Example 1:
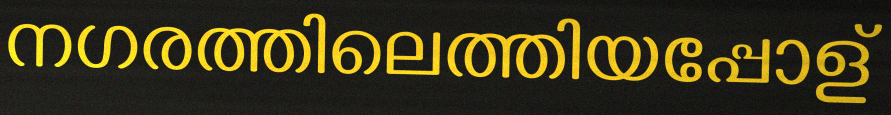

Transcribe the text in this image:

നഗരത്തിലെത്തിയപ്പോള്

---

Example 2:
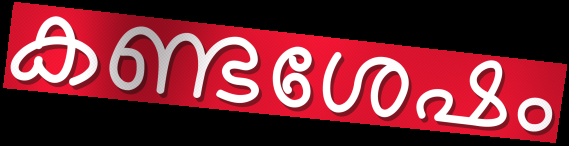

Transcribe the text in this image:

കണ്ടശേഷം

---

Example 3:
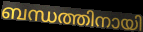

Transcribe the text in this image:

ബന്ധത്തിനായി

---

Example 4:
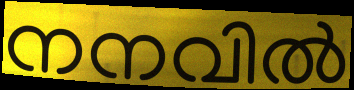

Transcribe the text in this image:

നനവിൽ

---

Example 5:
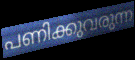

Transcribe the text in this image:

പണിക്കുവരുന്ന